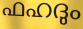
ഫഹദും